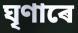
ঘৃণাৰে